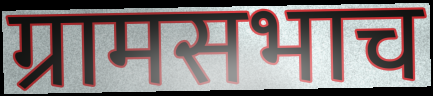
ग्रामसभाच